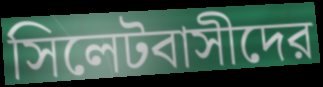
সিলেটবাসীদের